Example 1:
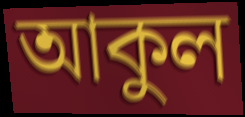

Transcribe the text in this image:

আকুল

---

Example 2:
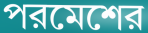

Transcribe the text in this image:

পরমেশের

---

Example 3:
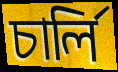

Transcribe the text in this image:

চার্লি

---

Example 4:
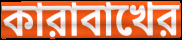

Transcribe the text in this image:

কারাবাখের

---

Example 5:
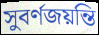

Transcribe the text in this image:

সুবর্ণজয়ন্তি